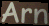
Arn